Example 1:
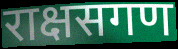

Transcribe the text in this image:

राक्षसगण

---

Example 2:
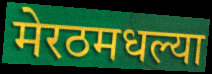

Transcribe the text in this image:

मेरठमधल्या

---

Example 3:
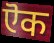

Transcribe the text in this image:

ऎक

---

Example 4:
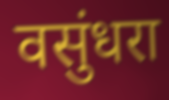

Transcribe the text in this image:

वसुंधरा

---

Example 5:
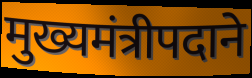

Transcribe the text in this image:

मुख्यमंत्रीपदाने